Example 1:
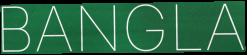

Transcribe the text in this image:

BANGLA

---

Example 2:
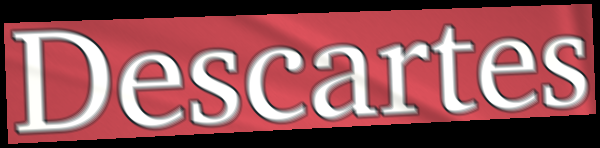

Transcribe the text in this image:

Descartes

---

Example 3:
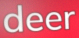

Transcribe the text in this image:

deer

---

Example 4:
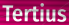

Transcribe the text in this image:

Tertius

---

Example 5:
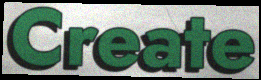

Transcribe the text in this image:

Create